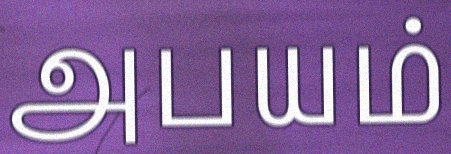
அபயம்